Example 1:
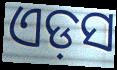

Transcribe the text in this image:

ଏଡ଼ସ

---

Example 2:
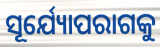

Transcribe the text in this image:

ସୂର୍ଯ୍ୟୋପରାଗକୁ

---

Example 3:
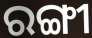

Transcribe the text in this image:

ରଙ୍ଗୀ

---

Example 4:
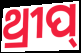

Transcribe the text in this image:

ଥ୍ରୀପ୍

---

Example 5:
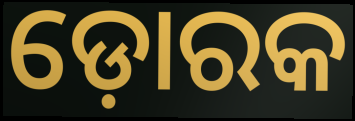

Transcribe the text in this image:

ଡ଼ୋରକ